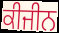
ਕੀਜੀਨ